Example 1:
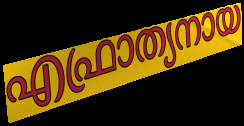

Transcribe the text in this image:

എഫ്രാത്യനായ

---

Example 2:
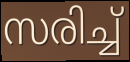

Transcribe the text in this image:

സരിച്ച്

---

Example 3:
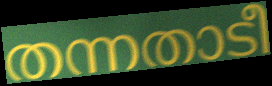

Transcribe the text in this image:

തന്നതാടീ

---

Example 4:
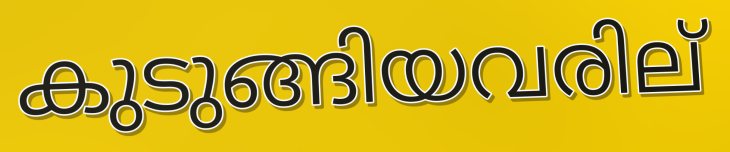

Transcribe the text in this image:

കുടുങ്ങിയവരില്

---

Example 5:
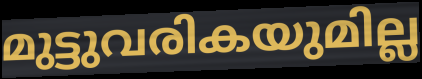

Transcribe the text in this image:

മുട്ടുവരികയുമില്ല